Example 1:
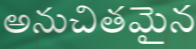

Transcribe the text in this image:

అనుచితమైన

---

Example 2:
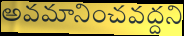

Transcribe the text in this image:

అవమానించవద్దని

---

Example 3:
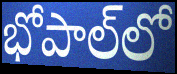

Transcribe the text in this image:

భోపాల్‌లో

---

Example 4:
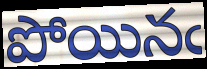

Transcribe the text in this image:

పోయినఁ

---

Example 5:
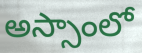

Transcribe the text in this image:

అస్సాంలో